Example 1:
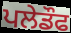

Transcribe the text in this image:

ਪਲੇਡੌਫ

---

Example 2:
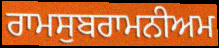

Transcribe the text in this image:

ਰਾਮਸੁਬਰਾਮਨੀਅਮ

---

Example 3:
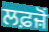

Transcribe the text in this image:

ਲਫ਼ਜ਼ੋਂ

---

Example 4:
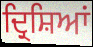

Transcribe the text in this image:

ਦ੍ਰਿਸ਼ਿਆਂ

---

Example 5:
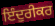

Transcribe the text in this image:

ਇੰਦੁਰੀਕਰ